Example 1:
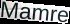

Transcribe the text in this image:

Mamre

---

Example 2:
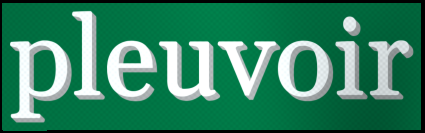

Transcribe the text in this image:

pleuvoir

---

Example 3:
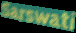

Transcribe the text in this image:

Sarswati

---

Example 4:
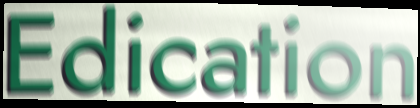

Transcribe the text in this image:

Edication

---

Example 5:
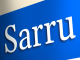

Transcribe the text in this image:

Sarru